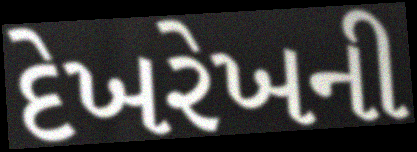
દેખરેખની